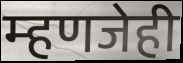
म्हणजेही